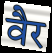
वैर